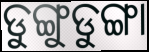
ଡୁଙ୍ଗୁଡୁଙ୍ଗା